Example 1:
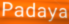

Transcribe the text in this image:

Padaya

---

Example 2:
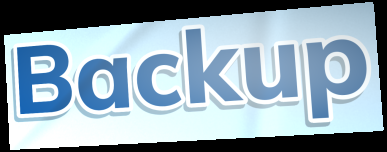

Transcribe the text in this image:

Backup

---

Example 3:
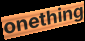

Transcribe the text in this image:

onething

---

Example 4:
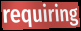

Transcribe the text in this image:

requiring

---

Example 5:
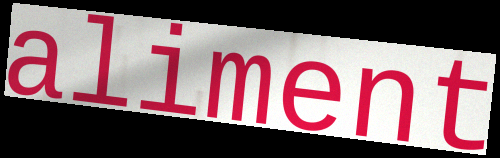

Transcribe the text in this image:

aliment